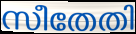
സീതേതി